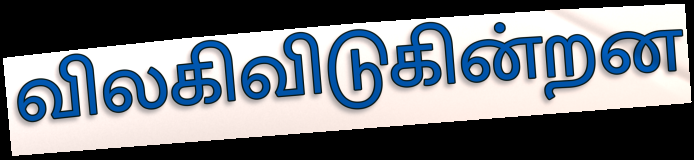
விலகிவிடுகின்றன